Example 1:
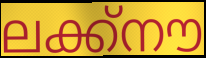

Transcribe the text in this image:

ലക്ക്നൗ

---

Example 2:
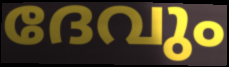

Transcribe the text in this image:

ദേവും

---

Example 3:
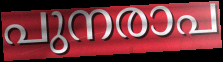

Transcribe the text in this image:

പുനരാപ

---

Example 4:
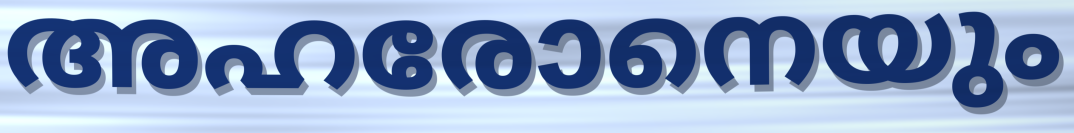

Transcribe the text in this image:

അഹരോനെയും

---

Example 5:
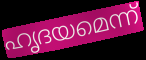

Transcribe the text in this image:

ഹൃദയമെന്ന്